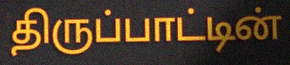
திருப்பாட்டின்